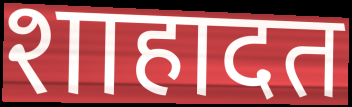
शाहादत